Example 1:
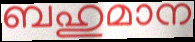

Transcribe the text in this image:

ബഹുമാന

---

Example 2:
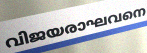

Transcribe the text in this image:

വിജയരാഘവനെ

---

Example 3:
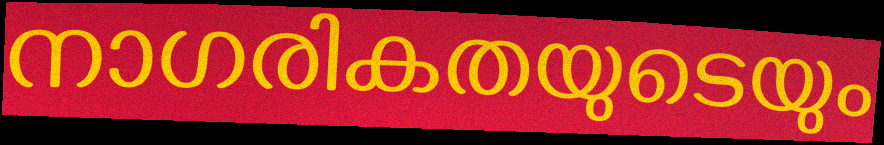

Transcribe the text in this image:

നാഗരികതയുടെയും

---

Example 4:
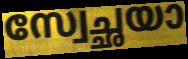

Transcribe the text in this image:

സ്വേച്ഛയാ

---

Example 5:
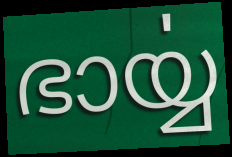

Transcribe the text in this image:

ഭാൎയ്യ